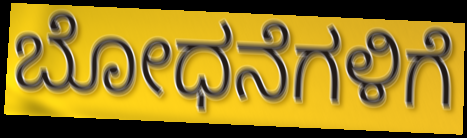
ಬೋಧನೆಗಳಿಗೆ